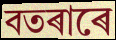
বতৰাৰে